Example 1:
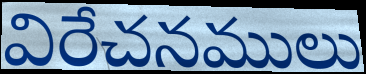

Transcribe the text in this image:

విరేచనములు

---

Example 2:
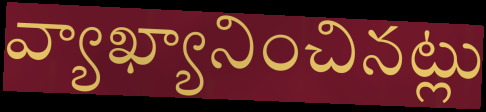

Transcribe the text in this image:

వ్యాఖ్యానించినట్లు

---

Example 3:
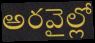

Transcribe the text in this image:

అరవైల్లో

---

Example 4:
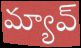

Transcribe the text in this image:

మ్యావ్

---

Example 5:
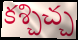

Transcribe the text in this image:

కశ్చిచ్చ